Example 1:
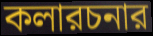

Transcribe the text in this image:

কলারচনার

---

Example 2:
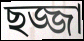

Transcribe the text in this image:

ছজ্জা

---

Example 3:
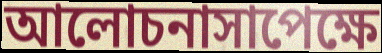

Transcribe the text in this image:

আলোচনাসাপেক্ষে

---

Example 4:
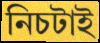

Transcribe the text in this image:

নিচটাই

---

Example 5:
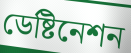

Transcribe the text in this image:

ডেষ্টিনেশন